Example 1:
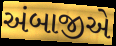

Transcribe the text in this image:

અંબાજીએ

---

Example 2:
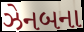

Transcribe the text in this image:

ઝેનબના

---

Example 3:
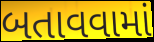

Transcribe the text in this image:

બતાવવામાં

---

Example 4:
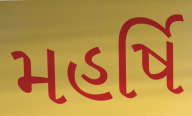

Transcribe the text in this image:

મહર્ષિ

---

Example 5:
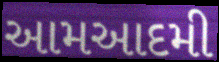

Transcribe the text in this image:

આમઆદમી